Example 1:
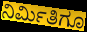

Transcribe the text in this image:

ನಿರ್ಮಿತಿಗೂ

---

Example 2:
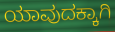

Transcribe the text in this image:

ಯಾವುದಕ್ಕಾಗಿ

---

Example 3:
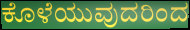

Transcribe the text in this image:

ಕೊಳೆಯುವುದರಿಂದ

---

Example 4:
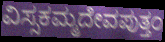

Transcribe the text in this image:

ವಿಸ್ಸಕಮ್ಮದೇವಪುತ್ತಂ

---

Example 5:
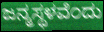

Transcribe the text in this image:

ಜನ್ಮಸ್ಥಳವೆಂದು